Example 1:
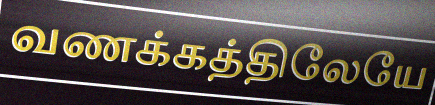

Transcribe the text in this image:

வணக்கத்திலேயே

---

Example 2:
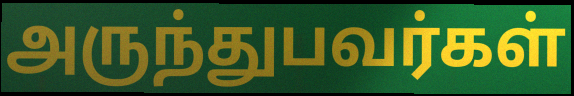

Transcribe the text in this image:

அருந்துபவர்கள்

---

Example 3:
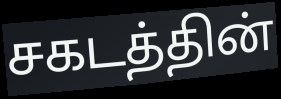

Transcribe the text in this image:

சகடத்தின்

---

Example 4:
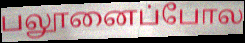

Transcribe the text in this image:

பலூனைப்போல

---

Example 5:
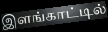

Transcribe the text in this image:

இளங்காட்டில்